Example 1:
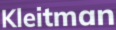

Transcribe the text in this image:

Kleitman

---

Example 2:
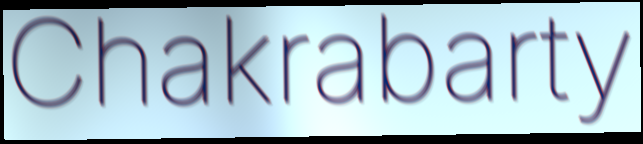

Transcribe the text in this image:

Chakrabarty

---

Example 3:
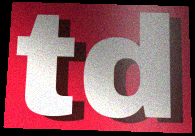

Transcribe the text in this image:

td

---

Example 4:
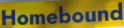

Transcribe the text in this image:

Homebound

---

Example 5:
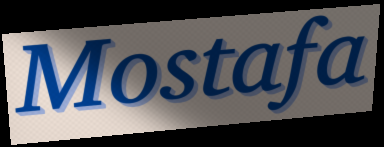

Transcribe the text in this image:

Mostafa